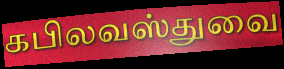
கபிலவஸ்துவை